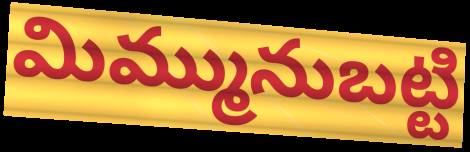
మిమ్మునుబట్టి